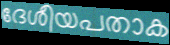
ദേശീയപതാക